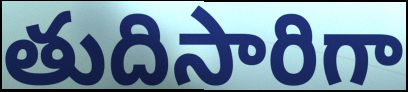
తుదిసారిగా